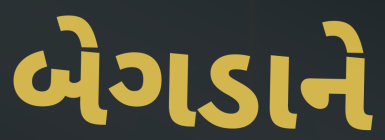
બેગડાને